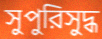
সুপুরিসুদ্ধ